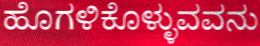
ಹೊಗಳಿಕೊಳ್ಳುವವನು